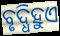
ବୃଦ୍ଧିହୁଏ